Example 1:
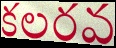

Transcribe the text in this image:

కలరవ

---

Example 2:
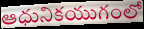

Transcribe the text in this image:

ఆధునికయుగంలో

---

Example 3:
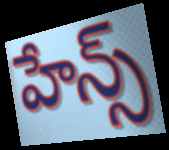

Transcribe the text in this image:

హేన్స్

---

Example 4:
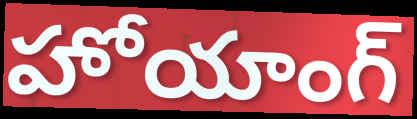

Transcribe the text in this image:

హోయాంగ్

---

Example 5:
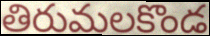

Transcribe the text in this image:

తిరుమలకొండ